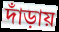
দাঁড়ায়